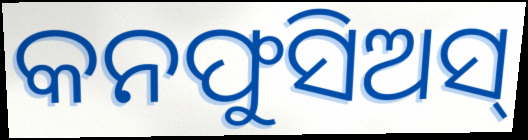
କନଫୁସିଅସ୍